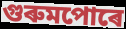
গুৰুমপোৰে